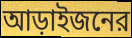
আড়াইজনের